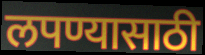
लपण्यासाठी